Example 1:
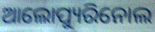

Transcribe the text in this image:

ଆଲୋପ୍ୟୁରିନୋଲ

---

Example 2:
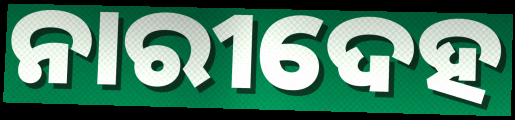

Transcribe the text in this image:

ନାରୀଦେହ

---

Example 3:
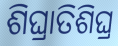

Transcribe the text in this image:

ଶିଘ୍ରାତିଶିଘ୍ର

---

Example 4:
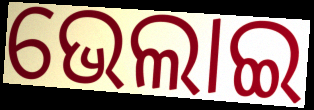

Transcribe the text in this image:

ଭେଲାଇ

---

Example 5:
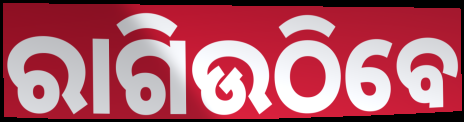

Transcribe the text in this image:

ରାଗିଉଠିବେ